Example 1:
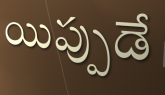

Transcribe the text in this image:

యిప్పుడే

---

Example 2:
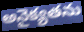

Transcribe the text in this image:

అనైక్యతను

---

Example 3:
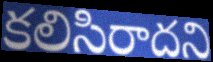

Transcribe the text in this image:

కలిసిరాదని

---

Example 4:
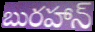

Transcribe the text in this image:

బురహాన్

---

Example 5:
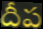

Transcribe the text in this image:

దీప